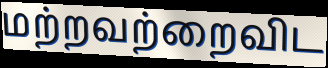
மற்றவற்றைவிட